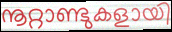
നൂറ്റാണ്ടുകളായി